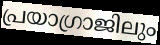
പ്രയാഗ്രാജിലും